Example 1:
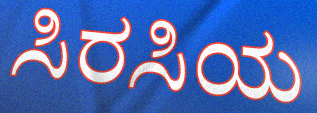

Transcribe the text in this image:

ಸಿರಸಿಯ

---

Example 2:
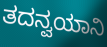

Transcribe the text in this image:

ತದನ್ವಯಾನಿ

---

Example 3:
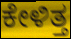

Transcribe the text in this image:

ಕೇಳಿತ್ತ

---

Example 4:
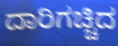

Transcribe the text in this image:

ದಾರಿಗಚ್ಚಿದ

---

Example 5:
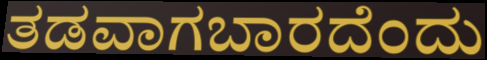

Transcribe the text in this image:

ತಡವಾಗಬಾರದೆಂದು